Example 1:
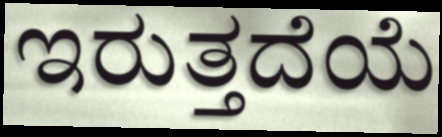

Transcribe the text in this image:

ಇರುತ್ತದೆಯೆ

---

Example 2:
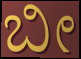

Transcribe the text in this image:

ಬೀ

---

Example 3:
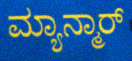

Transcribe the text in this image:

ಮ್ಯಾನ್ಮಾರ್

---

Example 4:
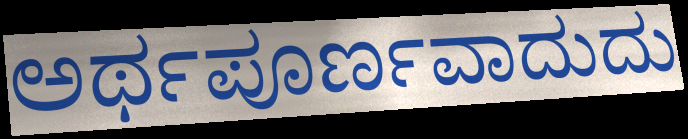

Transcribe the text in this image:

ಅರ್ಥಪೂರ್ಣವಾದುದು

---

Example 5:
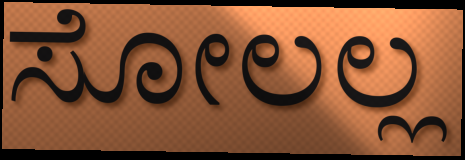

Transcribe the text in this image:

ಸೋಲಲ್ಲ